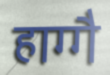
हाग्गै